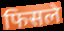
फिसले